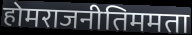
होमराजनीतिममता